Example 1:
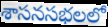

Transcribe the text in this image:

శాసనసభలలో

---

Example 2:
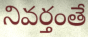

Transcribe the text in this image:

నివర్తంతే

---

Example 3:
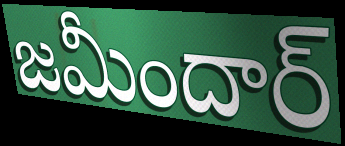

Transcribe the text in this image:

జమీందార్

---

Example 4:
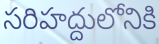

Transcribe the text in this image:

సరిహద్దులోనికి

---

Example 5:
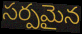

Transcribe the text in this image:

సర్పమైన